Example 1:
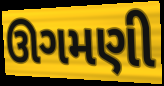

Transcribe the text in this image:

ઊગમણી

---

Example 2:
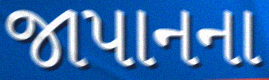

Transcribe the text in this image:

જાપાનના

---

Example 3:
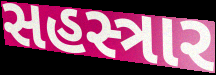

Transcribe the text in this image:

સહસ્ત્રાર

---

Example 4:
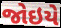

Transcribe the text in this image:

જોઇયે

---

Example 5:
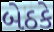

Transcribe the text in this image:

બેઠકે